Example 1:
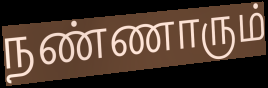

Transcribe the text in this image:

நண்ணாரும்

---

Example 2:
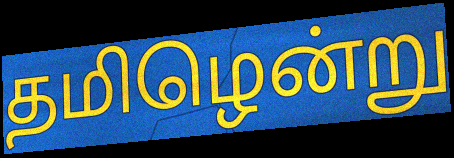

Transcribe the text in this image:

தமிழென்று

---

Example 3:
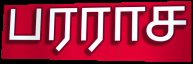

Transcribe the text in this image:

பரராச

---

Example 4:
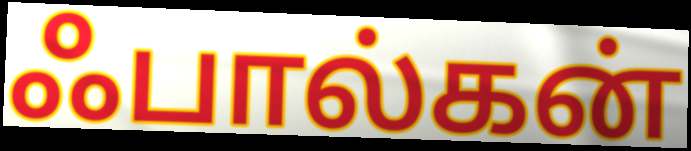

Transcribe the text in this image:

ஃபால்கன்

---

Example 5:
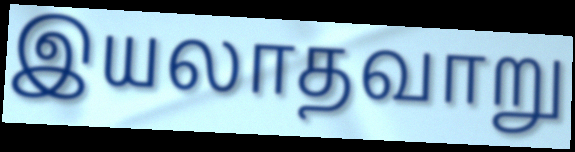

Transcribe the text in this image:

இயலாதவாறு